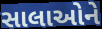
સાલાઓને